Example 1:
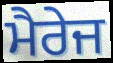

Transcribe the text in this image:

ਮੈਰੇਜ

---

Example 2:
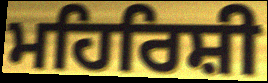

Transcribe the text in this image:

ਮਹਿਰਿਸ਼ੀ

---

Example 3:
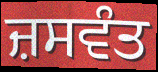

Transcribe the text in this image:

ਜ਼ਸਵੰਤ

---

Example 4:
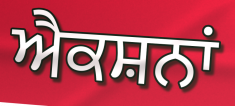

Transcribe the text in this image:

ਐਕਸ਼ਨਾਂ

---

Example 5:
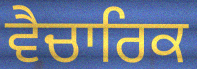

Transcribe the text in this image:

ਵੈਚਾਰਿਕ